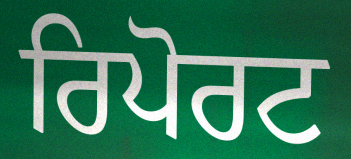
ਰਿਪੋਰਟ